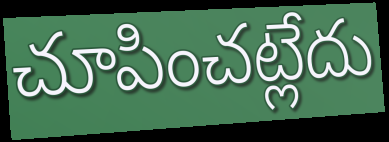
చూపించట్లేదు